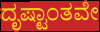
ದೃಷ್ಟಾಂತವೇ